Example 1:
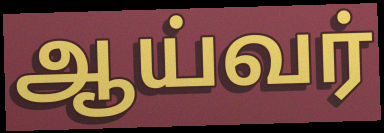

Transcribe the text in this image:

ஆய்வர்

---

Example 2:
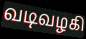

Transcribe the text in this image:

வடிவழகி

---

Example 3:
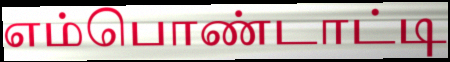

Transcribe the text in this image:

எம்பொண்டாட்டி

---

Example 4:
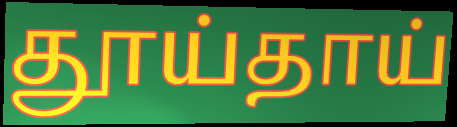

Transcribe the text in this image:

தூய்தாய்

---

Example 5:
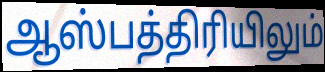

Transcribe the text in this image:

ஆஸ்பத்திரியிலும்